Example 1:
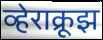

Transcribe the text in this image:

व्हेराक्रूझ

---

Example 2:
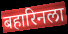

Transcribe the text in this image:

बहारिनला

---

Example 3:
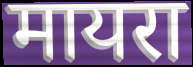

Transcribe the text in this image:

मायरा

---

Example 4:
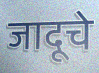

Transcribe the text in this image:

जादूचे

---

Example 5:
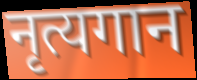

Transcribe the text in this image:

नृत्यगान